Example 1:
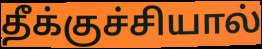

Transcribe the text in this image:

தீக்குச்சியால்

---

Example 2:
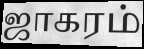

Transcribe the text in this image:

ஜாகரம்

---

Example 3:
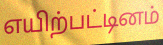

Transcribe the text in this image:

எயிற்பட்டினம்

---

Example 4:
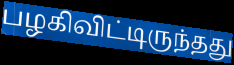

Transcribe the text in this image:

பழகிவிட்டிருந்தது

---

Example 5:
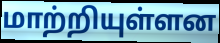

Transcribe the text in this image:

மாற்றியுள்ளன